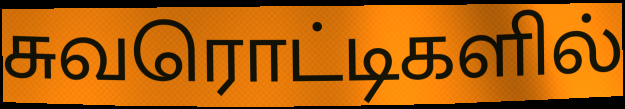
சுவரொட்டிகளில்